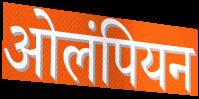
ओलंपियन